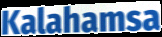
Kalahamsa